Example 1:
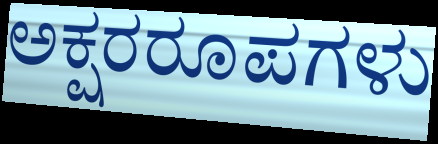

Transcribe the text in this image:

ಅಕ್ಷರರೂಪಗಳು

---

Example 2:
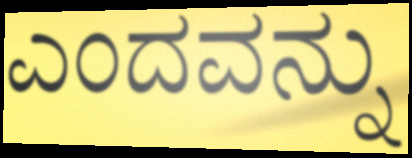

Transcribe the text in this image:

ಎಂದವನ್ನು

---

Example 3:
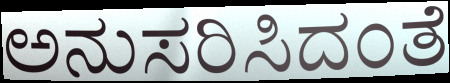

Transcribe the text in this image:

ಅನುಸರಿಸಿದಂತೆ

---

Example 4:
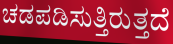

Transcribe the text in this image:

ಚಡಪಡಿಸುತ್ತಿರುತ್ತದೆ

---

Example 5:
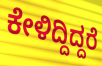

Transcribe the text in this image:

ಕೇಳಿದ್ದಿದ್ದರೆ